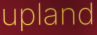
upland